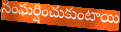
సంఘర్షించుకుంటాయి